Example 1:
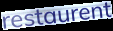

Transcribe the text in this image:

restaurent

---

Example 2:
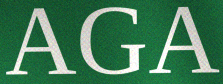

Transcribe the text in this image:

AGA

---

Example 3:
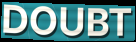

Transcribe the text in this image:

DOUBT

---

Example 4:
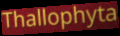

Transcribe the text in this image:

Thallophyta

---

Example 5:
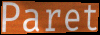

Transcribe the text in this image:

Paret